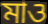
মাও